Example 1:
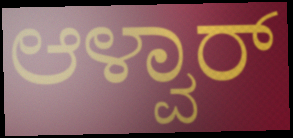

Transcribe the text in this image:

ಆಳ್ವಾರ್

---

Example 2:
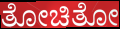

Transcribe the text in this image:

ತೋಚಿತೋ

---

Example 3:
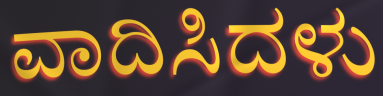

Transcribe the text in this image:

ವಾದಿಸಿದಳು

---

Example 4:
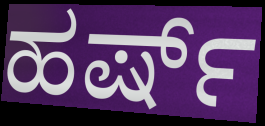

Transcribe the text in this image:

ಹರ್ಷ್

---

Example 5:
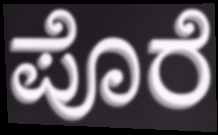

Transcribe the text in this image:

ಪೊರೆ